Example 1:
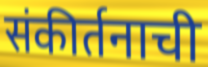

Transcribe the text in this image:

संकीर्तनाची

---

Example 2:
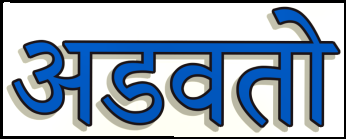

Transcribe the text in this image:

अडवतो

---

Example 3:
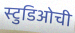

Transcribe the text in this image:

स्टुडिओची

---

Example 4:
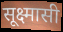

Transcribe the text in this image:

सूक्ष्मासी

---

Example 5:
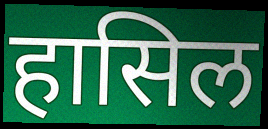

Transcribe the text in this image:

हासिल